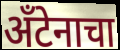
अँटेनाचा